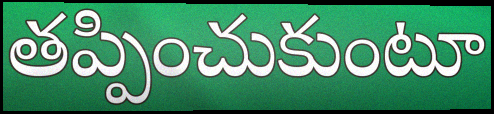
తప్పించుకుంటూ